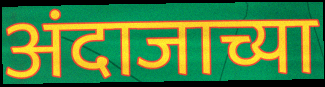
अंदाजाच्या